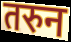
तरुन